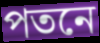
পতনে